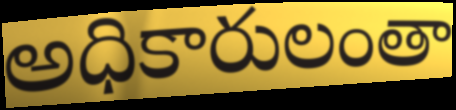
అధికారులంతా